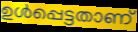
ഉൾപ്പെട്ടതാണ്